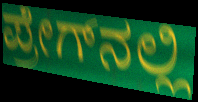
ಪ್ರೇಗ್‌ನಲ್ಲಿ